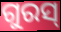
ଗୁରସ୍